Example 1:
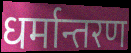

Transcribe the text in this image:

धर्मान्तरण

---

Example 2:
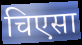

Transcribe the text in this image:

चिएसा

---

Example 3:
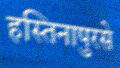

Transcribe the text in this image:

हस्तिनापुरसे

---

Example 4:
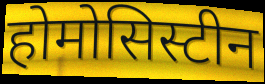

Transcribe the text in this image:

होमोसिस्टीन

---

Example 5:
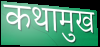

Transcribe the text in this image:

कथामुख